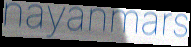
nayanmars